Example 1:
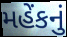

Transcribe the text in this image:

મહેંકનું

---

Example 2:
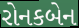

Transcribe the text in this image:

રોનકબેન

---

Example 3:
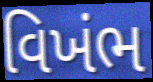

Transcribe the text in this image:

વિખંભ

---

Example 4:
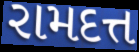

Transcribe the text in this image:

રામદત્ત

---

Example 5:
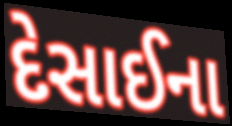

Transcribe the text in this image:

દેસાઈના